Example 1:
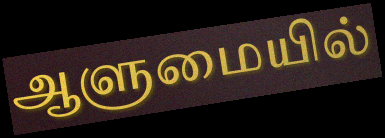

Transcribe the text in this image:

ஆளுமையில்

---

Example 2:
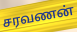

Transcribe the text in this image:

சரவணன்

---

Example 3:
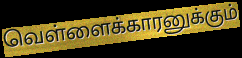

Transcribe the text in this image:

வெள்ளைக்காரனுக்கும்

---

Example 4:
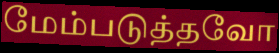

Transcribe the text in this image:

மேம்படுத்தவோ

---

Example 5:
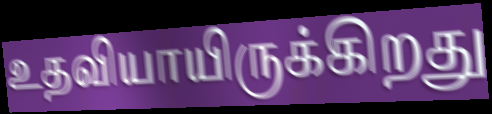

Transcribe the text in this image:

உதவியாயிருக்கிறது